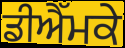
ਡੀਐੱਮਕੇ